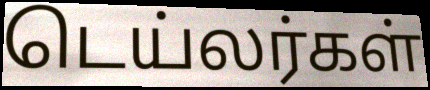
டெய்லர்கள்